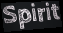
Spirit